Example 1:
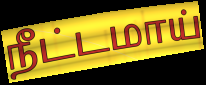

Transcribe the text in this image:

நீட்டமாய்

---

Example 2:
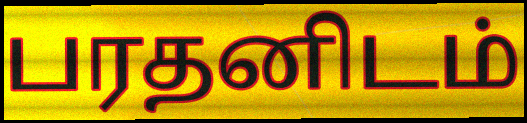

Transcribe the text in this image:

பரதனிடம்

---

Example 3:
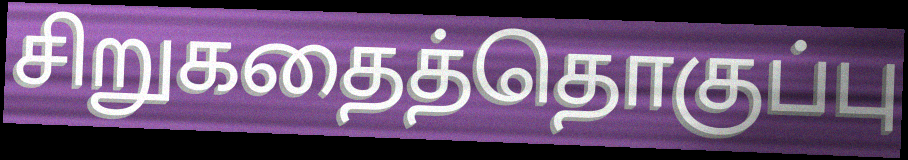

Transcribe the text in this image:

சிறுகதைத்தொகுப்பு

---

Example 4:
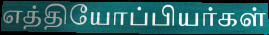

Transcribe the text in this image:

எத்தியோப்பியர்கள்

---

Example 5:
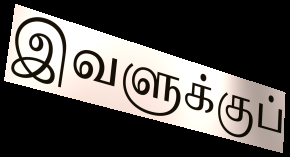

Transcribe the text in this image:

இவளுக்குப்